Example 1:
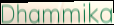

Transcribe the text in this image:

Dhammika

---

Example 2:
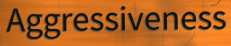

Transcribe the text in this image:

Aggressiveness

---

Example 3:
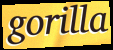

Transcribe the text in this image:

gorilla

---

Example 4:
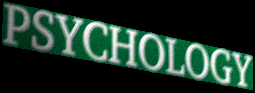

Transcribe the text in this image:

PSYCHOLOGY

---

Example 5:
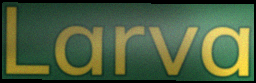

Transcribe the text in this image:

Larva